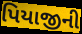
પિયાજીની